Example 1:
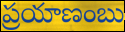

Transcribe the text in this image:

ప్రయాణంబు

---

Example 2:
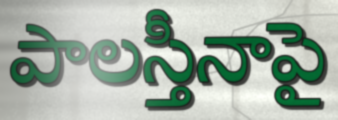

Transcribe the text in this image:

పాలస్తీనాపై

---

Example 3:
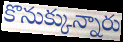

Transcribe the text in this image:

కొనుక్కున్నారు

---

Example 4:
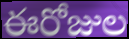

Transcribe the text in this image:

ఈరోజుల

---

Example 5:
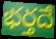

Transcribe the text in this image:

భర్తదే